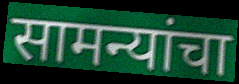
सामन्यांचा